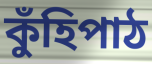
কুঁহিপাঠ